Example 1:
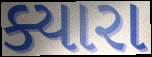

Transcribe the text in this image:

ક્યારા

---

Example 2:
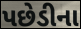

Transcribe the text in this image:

પછેડીના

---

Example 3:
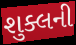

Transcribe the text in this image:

શુક્લની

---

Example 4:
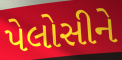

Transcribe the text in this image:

પેલોસીને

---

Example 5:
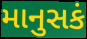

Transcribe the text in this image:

માનુસકં